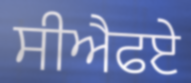
ਸੀਐਫਏ